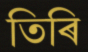
তিৰি